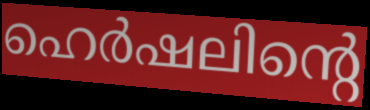
ഹെർഷലിന്റെ